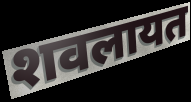
शवलायत